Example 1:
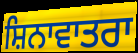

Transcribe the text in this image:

ਸ਼ਿਨਾਵਾਤਰਾ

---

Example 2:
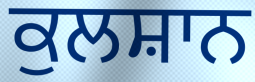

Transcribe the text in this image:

ਕੁਲਸ਼ਾਨ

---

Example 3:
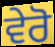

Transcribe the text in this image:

ਵੇਰੋ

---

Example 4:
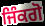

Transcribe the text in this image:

ਜਿੰਕਗੋ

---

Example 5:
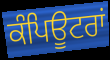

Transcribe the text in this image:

ਕੰਪਿਊਟਰਾਂ